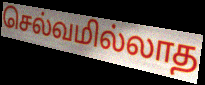
செல்வமில்லாத